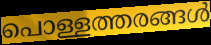
പൊള്ളത്തരങ്ങൾ